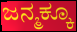
ಜನ್ಮಕ್ಕೂ